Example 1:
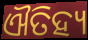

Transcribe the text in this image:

ଐତିହ୍ୟ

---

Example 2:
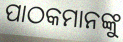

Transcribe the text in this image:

ପାଠକମାନଙ୍କୁ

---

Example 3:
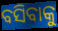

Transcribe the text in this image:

ବସିବାକୁ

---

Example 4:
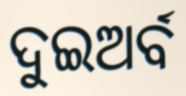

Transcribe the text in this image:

ଦୁଇଅର୍ବ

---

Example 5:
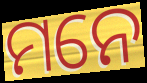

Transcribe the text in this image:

ମନେ